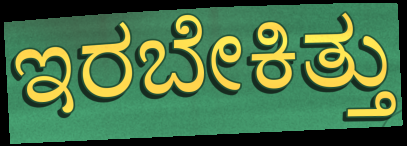
ಇರಬೇಕಿತ್ತು